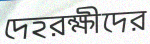
দেহরক্ষীদের